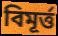
বিমূৰ্ত্ত